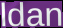
ldan